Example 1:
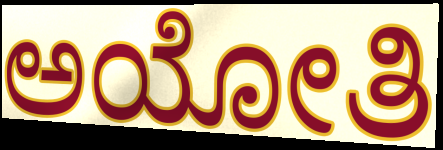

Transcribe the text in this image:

ಅಯೋತಿ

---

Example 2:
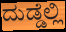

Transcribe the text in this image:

ದುಡ್ಡೆಲ್ಲಿ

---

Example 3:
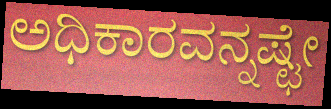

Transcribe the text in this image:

ಅಧಿಕಾರವನ್ನಷ್ಟೇ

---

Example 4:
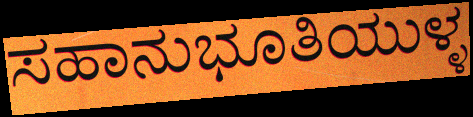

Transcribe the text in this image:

ಸಹಾನುಭೂತಿಯುಳ್ಳ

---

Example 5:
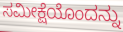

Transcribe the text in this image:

ಸಮೀಕ್ಷೆಯೊಂದನ್ನು